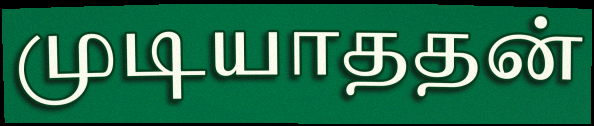
முடியாததன்